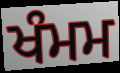
ਖੰਮਮ